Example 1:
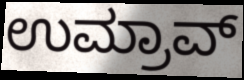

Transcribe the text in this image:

ಉಮ್ರಾವ್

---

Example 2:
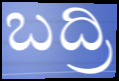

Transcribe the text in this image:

ಬದ್ರಿ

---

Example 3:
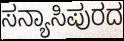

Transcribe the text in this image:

ಸನ್ಯಾಸಿಪುರದ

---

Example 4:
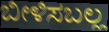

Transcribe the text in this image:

ಬೀಳಿಸಬಲ್ಲ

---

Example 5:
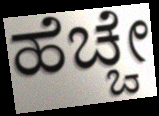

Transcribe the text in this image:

ಹೆಚ್ಚೇ